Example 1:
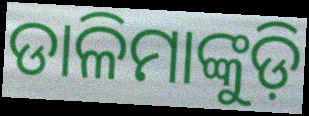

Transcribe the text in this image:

ଡାଳିମାଙ୍କୁଡ଼ି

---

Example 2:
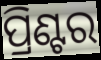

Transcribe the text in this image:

ପ୍ରିଣ୍ଟର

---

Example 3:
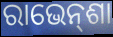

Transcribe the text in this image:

ରାଭେନ୍‌ଶା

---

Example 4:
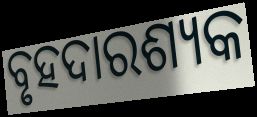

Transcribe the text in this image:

ବୃହଦାରଶ୍ୟକ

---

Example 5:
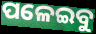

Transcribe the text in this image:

ପଳେଇବୁ